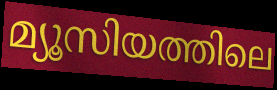
മ്യൂസിയത്തിലെ